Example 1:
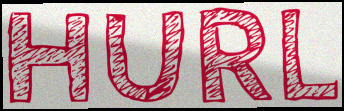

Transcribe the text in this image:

HURL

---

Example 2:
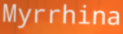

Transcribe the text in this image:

Myrrhina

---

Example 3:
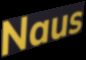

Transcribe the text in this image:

Naus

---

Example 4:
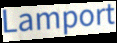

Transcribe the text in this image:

Lamport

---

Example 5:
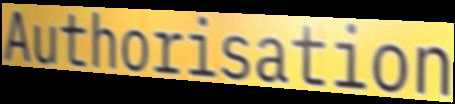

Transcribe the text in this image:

Authorisation